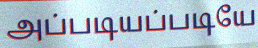
அப்படியப்படியே